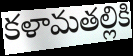
కళామతల్లికి